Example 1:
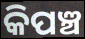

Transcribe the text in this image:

କିପଞ୍ଚ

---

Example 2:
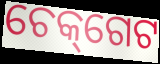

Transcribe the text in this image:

ଚେକ୍‌ଗେଟ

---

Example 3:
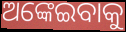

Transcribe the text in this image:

ଅଙ୍କେଇବାକୁ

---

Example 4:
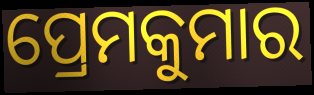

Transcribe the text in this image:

ପ୍ରେମକୁମାର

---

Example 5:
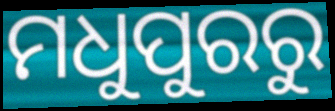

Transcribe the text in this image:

ମଧୁପୁରରୁ